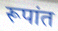
रूपांत